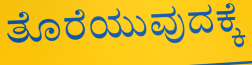
ತೊರೆಯುವುದಕ್ಕೆ